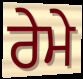
ਰੇਮੇ